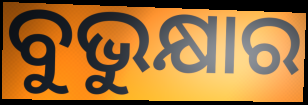
ବୁଭୁକ୍ଷାର